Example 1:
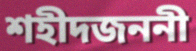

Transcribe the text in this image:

শহীদজননী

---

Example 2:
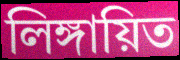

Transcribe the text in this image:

লিঙ্গায়িত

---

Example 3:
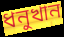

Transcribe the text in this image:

ধনুখান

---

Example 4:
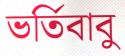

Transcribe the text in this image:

ভর্তিবাবু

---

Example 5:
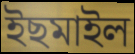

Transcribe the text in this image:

ইছমাইল